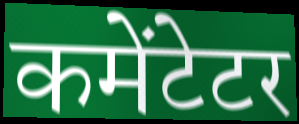
कमेंटेटर